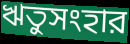
ঋতুসংহার